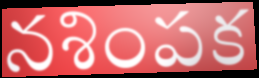
నశింపక